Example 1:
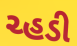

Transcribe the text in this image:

ચ્હડી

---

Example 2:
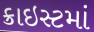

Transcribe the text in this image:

ક્રાઇસ્ટમાં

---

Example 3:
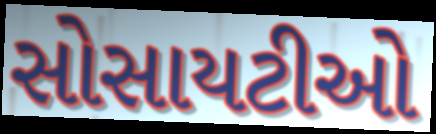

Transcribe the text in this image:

સોસાયટીઓ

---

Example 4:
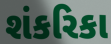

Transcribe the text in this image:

શંકરિકા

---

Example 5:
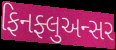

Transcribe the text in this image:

ફિનફ્લુઅન્સર